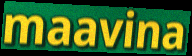
maavina